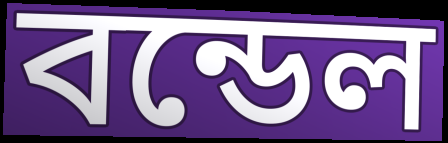
বন্ডেল